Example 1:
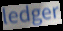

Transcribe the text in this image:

ledger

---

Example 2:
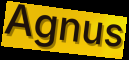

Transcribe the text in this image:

Agnus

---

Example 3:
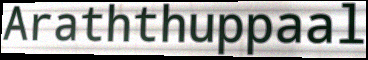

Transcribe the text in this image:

Araththuppaal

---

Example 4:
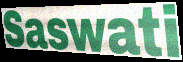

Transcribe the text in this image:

Saswati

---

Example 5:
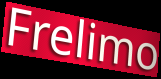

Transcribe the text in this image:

Frelimo